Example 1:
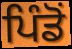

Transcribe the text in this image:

ਪਿੰਡੋਂ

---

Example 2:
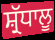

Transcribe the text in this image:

ਸ਼੍ਰੱਧਾਲੂ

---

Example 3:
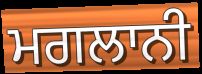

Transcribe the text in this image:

ਮਗਲਾਨੀ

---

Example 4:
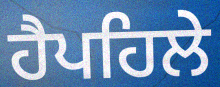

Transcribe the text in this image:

ਹੈਪਹਿਲੇ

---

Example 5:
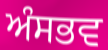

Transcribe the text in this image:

ਅੰਸਭਵ